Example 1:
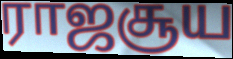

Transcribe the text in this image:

ராஜசூய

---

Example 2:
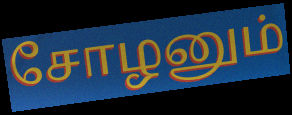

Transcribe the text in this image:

சோழனும்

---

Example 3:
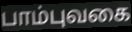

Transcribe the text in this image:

பாம்புவகை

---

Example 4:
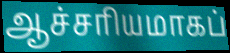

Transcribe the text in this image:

ஆச்சரியமாகப்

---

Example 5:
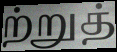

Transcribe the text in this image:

ற்றுத்